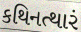
કથિનત્થારં